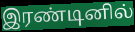
இரண்டினில்